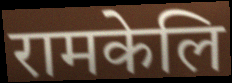
रामकेलि